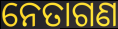
ନେତାଗଣ